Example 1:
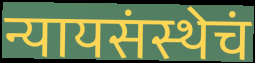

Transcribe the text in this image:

न्यायसंस्थेचं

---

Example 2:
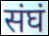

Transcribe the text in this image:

संघं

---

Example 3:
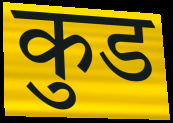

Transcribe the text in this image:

कुड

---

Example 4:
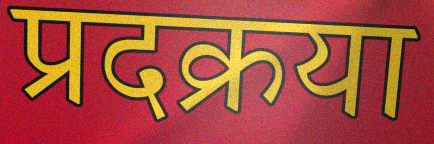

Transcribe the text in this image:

प्रदक्रया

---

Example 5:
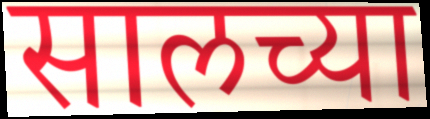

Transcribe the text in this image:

सालच्या